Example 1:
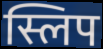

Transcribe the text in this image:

स्लिप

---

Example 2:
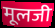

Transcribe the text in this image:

मूलजी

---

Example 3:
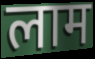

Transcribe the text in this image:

लाम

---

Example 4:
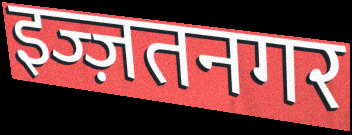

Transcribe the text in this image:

इज्ज़तनगर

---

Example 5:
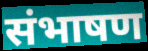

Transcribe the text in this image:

संभाषण